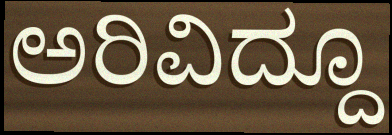
ಅರಿವಿದ್ದೂ